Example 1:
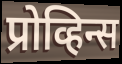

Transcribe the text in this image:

प्रोव्हिन्स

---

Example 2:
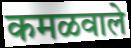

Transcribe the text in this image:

कमळवाले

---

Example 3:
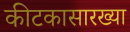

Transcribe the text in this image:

कीटकासारख्या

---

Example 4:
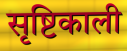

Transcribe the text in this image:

सृष्टिकाली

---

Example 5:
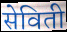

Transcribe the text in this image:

सेविती